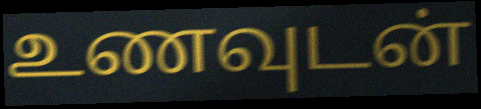
உணவுடன்